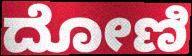
ದೋಣಿ